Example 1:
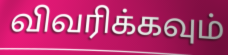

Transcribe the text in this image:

விவரிக்கவும்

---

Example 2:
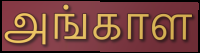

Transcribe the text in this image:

அங்காள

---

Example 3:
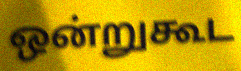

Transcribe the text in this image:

ஒன்றுகூட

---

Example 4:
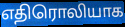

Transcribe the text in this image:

எதிரொலியாக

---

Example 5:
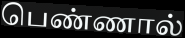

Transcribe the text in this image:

பெண்ணால்